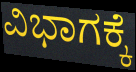
ವಿಭಾಗಕ್ಕೆ